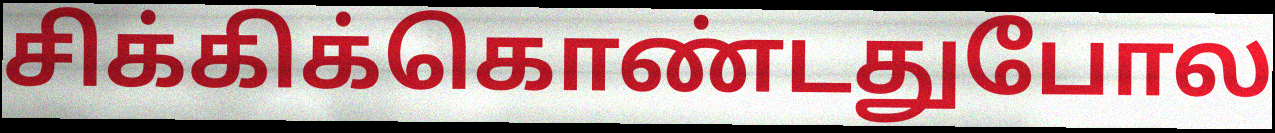
சிக்கிக்கொண்டதுபோல